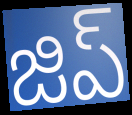
జిప్